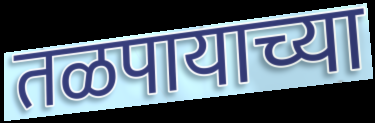
तळपायाच्या